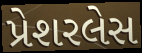
પ્રેશરલેસ